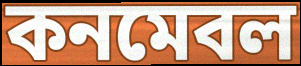
কনমেবল